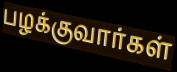
பழக்குவார்கள்